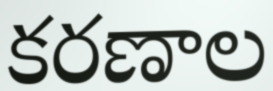
కరణాల